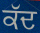
ਕੱਦ